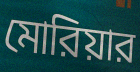
মোরিয়ার